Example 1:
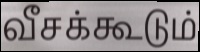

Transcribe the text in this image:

வீசக்கூடும்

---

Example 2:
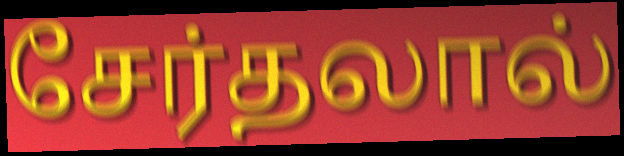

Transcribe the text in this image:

சேர்தலால்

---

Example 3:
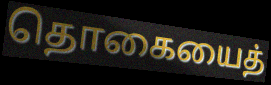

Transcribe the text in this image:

தொகையைத்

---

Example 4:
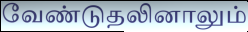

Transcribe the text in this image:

வேண்டுதலினாலும்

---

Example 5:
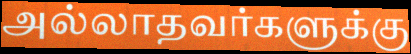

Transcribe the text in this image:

அல்லாதவர்களுக்கு